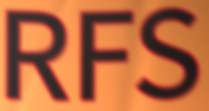
RFS